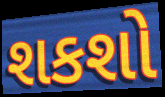
શકશો